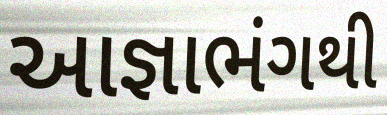
આજ્ઞાભંગથી